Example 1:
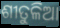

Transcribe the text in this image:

ଶୀତୁଳିଆ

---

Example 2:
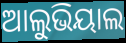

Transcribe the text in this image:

ଆଲୁଭିୟାଲ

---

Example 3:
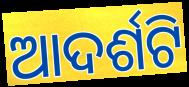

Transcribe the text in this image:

ଆଦର୍ଶଟି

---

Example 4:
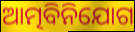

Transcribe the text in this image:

ଆତ୍ମବିନିଯୋଗ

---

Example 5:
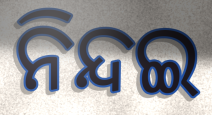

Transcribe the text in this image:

ନିନ୍ଦଇ